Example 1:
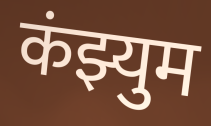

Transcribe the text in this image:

कंझ्युम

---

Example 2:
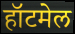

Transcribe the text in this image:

हॉटमेल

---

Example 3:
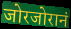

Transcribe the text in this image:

जोरजोरानं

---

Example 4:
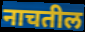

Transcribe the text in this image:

नाचतील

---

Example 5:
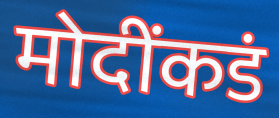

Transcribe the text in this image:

मोदींकडं